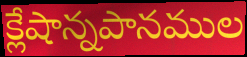
క్లేషాన్నపానముల